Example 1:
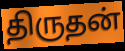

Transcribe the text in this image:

திருதன்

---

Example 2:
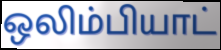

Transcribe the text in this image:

ஒலிம்பியாட்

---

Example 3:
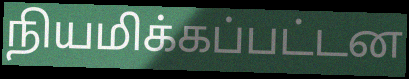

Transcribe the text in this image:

நியமிக்கப்பட்டன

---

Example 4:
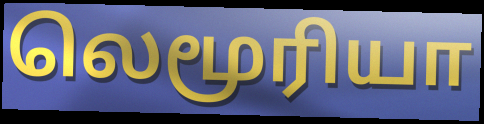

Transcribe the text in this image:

லெமூரியா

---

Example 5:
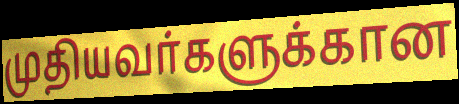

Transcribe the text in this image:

முதியவர்களுக்கான